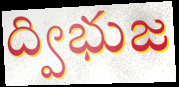
ద్విభుజ